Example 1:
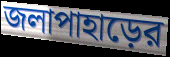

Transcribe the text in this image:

জলাপাহাড়ের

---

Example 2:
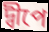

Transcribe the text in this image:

দ্বীপে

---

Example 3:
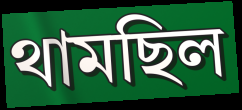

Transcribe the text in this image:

থামছিল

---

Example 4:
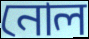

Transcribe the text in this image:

নোল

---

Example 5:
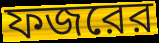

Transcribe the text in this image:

ফজরের